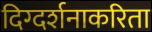
दिग्दर्शनाकरिता